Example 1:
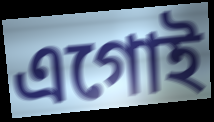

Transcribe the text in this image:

এগোই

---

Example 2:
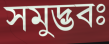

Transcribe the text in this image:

সমুদ্ভবঃ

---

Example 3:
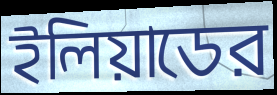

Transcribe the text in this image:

ইলিয়াডের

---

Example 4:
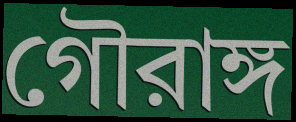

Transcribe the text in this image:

গৌরাঙ্গ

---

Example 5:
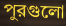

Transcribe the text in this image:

পুরগুলো